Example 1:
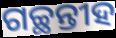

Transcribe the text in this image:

ଗଚ୍ଛନ୍ତୀହ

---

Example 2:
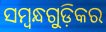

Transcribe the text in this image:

ସମ୍ବନ୍ଧଗୁଡ଼ିକର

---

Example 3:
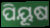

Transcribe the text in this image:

ପିୟୂଷ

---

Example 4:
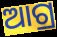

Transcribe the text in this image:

ଆଗ୍ର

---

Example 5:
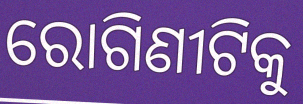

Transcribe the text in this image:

ରୋଗିଣୀଟିକୁ